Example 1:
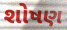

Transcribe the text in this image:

શોષણ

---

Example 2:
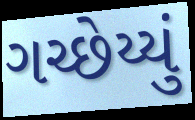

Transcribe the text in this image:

ગચ્છેય્યું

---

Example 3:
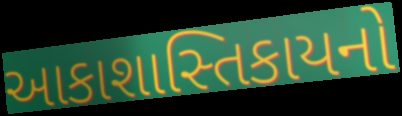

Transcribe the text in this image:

આકાશાસ્તિકાયનો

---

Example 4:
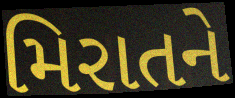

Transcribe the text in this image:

મિરાતને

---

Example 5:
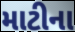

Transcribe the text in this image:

માટીના